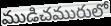
ముడిచమురులో